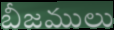
బీజములు